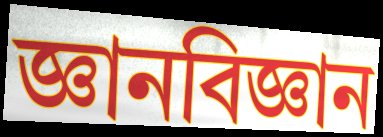
জ্ঞানবিজ্ঞান